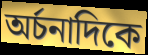
অর্চনাদিকে